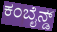
ಕಂಬೈನ್ಡ್